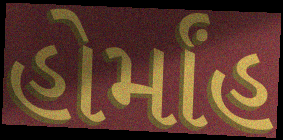
હોર્માંહ